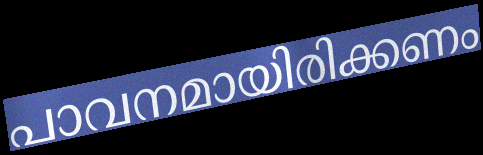
പാവനമായിരിക്കണം